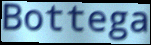
Bottega